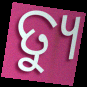
ତ୍ୟୁ